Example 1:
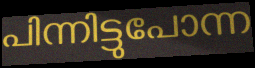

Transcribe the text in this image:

പിന്നിട്ടുപോന്ന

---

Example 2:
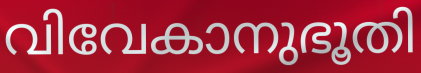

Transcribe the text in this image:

വിവേകാനുഭൂതി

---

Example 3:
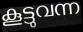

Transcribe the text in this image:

കൂട്ടുവന്ന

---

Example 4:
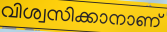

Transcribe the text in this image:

വിശ്വസിക്കാനാണ്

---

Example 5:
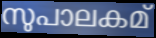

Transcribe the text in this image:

സുപാലകമ്